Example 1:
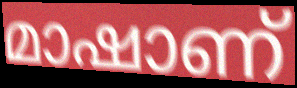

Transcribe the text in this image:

മാഷാണ്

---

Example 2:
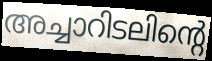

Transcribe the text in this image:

അച്ചാറിടലിന്റെ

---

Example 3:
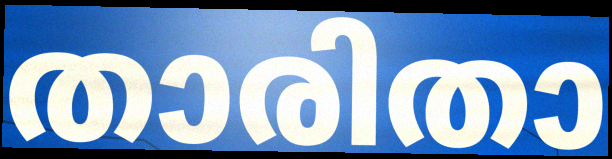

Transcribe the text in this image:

താരിതാ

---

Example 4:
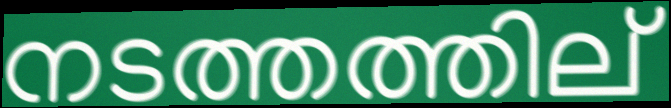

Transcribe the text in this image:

നടത്തത്തില്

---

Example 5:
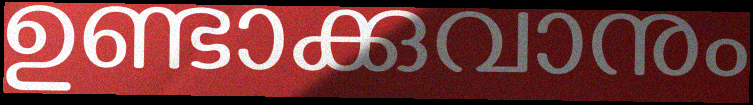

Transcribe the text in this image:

ഉണ്ടാക്കുവാനും